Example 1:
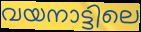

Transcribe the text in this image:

വയനാട്ടിലെ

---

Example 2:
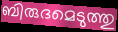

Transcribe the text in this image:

ബിരുദമെടുത്തു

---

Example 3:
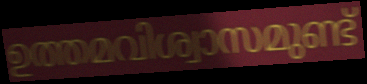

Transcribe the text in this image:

ഉത്തമവിശ്വാസമുണ്ട്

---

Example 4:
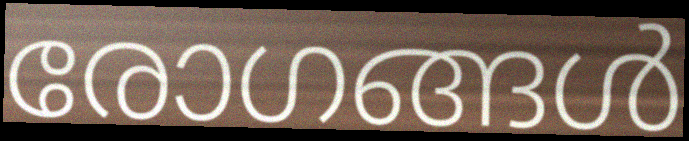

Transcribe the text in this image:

രോഗങ്ങൾ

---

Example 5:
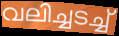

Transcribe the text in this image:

വലിച്ചടച്ച്